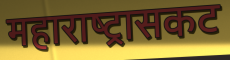
महाराष्ट्रासकट